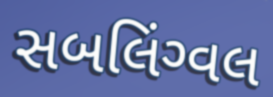
સબલિંગ્વલ